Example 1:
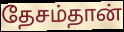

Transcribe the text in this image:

தேசம்தான்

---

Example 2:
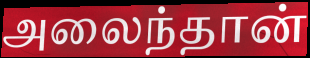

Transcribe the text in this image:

அலைந்தான்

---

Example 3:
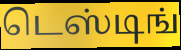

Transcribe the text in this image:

டெஸ்டிங்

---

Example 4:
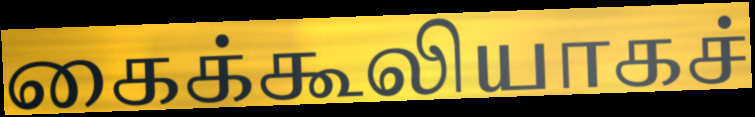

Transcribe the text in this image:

கைக்கூலியாகச்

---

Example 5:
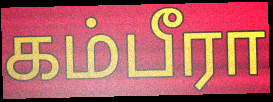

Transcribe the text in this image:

கம்பீரா